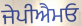
ਜੇਪੀਐਮਓ